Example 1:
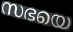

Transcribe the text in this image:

സഭയെ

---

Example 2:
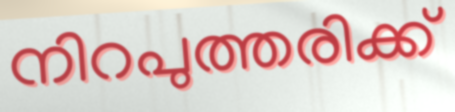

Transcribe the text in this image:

നിറപുത്തരിക്ക്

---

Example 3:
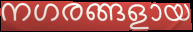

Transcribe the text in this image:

നഗരങ്ങളായ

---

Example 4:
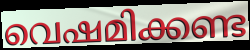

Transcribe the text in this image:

വെഷമിക്കണ്ട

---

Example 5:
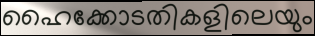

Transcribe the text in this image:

ഹൈക്കോടതികളിലെയും